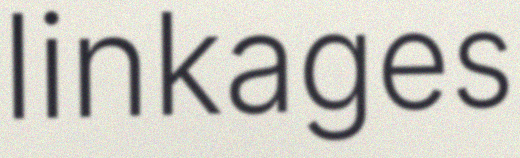
linkages